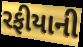
રફીયાની